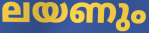
ലയണും